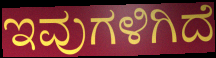
ಇವುಗಳಿಗಿದೆ